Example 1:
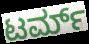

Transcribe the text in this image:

ಟರ್ಮ್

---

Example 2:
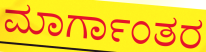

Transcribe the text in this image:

ಮಾರ್ಗಾಂತರ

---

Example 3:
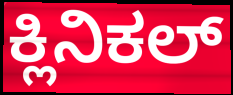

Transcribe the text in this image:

ಕ್ಲಿನಿಕಲ್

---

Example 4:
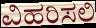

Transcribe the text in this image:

ವಿಹರಿಸಲಿ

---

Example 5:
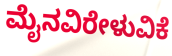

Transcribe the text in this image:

ಮೈನವಿರೇಳುವಿಕೆ